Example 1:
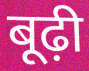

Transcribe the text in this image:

बूढ़ी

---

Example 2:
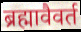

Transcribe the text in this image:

ब्रह्मावैवर्त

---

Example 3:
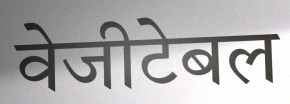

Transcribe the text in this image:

वेजीटेबल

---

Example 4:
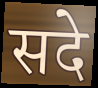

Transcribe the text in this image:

सदे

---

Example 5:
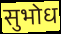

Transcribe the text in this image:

सुभोध